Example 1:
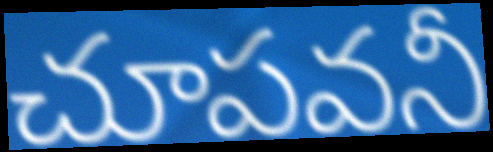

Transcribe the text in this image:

చూపవనీ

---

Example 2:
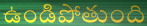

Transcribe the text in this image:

ఉండిపోతుంది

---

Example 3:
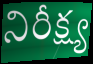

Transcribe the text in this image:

నిరీక్ష్య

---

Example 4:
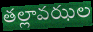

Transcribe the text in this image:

తల్లావఝల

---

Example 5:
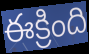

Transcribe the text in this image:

ఈక్రింది